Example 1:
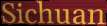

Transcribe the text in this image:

Sichuan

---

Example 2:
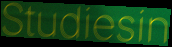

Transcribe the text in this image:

Studiesin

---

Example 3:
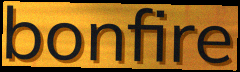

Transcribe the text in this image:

bonfire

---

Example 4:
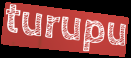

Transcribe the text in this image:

turupu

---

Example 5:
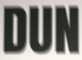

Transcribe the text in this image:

DUN